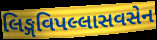
લિઙ્ગવિપલ્લાસવસેન